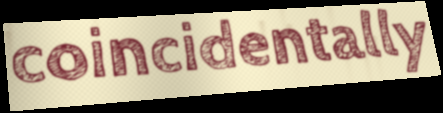
coincidentally